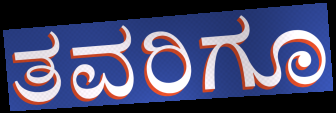
ತವರಿಗೂ